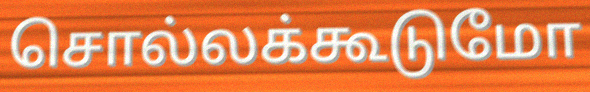
சொல்லக்கூடுமோ